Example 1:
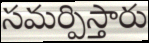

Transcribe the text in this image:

సమర్పిస్తారు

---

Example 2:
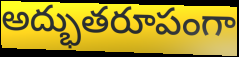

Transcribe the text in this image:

అద్భుతరూపంగా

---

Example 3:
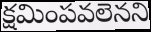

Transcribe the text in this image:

క్షమింపవలెనని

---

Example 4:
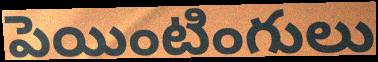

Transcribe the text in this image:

పెయింటింగులు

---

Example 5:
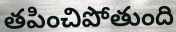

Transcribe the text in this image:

తపించిపోతుంది